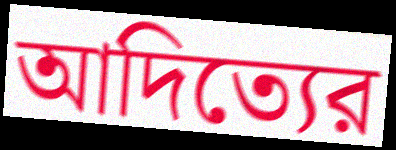
আদিত্যের